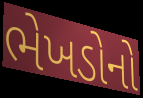
ભેખડોનો